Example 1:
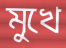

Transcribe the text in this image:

মুখে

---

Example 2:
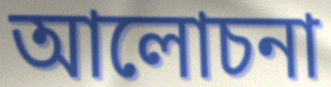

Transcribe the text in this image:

আলোচনা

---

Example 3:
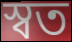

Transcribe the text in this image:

স্বত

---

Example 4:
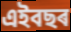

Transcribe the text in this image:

এইবছৰ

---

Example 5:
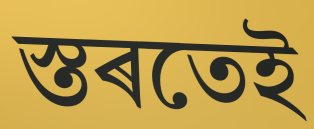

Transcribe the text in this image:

স্তৰতেই